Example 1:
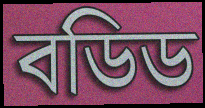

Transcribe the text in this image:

বডিড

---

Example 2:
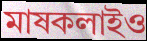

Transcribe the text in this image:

মাষকলাইও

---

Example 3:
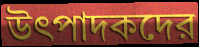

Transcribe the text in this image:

উৎপাদকদের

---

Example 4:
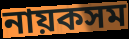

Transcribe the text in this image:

নায়কসম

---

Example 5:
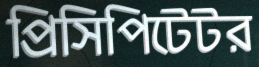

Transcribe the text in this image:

প্রিসিপিটেটর